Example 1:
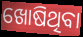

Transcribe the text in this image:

ଖୋଷିଥିବା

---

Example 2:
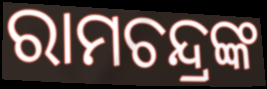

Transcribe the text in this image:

ରାମଚନ୍ଦ୍ରଙ୍କ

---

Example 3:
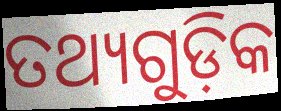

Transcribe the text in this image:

ତଥ୍ୟଗୁଡ଼ିକ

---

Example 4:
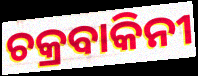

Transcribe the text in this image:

ଚକ୍ରବାକିନୀ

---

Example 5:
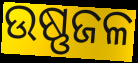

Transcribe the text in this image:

ଉଷ୍ଣଜଳ